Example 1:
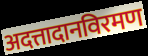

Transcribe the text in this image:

अदत्तादानविरमण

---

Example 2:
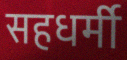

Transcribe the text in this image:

सहधर्मी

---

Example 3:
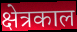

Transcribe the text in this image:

क्षेत्रकाल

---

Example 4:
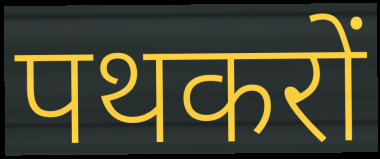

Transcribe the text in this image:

पथकरों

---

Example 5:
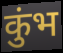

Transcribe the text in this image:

कुंभ